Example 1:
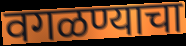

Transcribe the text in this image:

वगळण्याचा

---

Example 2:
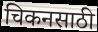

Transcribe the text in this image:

चिकनसाठी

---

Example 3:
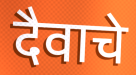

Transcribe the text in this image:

दैवाचे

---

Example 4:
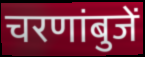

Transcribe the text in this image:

चरणांबुजें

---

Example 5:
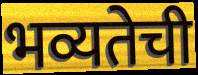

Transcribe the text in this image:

भव्यतेची